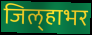
जिल्हाभर